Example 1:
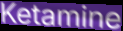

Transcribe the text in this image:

Ketamine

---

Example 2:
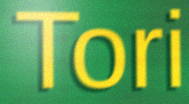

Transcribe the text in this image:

Tori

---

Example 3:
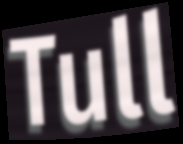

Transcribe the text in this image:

Tull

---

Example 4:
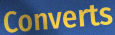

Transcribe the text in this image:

Converts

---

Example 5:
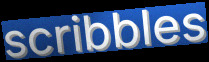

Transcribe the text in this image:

scribbles